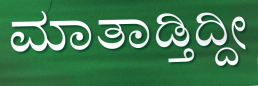
ಮಾತಾಡ್ತಿದ್ದೀ